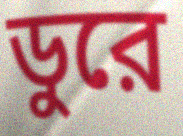
ডুরে